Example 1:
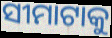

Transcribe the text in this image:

ସୀମାଟାକୁ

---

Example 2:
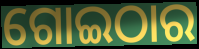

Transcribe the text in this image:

ଗୋଇଠାର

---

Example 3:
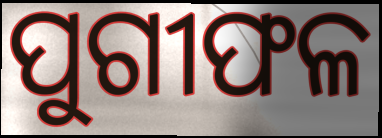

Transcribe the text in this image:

ପୁଗୀଫଳ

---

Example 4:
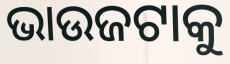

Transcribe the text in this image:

ଭାଉଜଟାକୁ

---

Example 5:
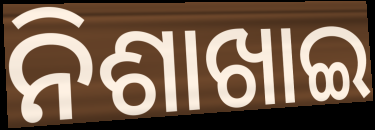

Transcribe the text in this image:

ନିଶାଖାଇ